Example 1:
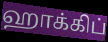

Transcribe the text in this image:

ஹாக்கிப்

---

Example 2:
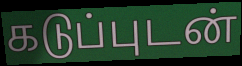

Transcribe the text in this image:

கடுப்புடன்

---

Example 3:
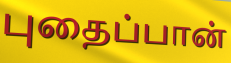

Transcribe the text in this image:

புதைப்பான்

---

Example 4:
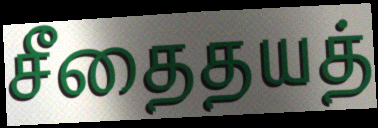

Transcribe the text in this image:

சீதைதயத்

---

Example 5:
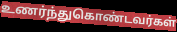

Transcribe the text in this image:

உணர்ந்துகொண்டவர்கள்